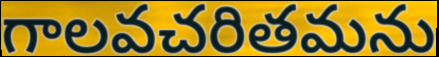
గాలవచరితమను